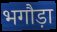
भगौड़ा